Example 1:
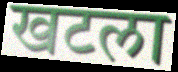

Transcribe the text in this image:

खटला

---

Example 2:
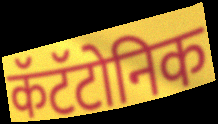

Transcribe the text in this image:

कॅटॅटोनिक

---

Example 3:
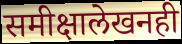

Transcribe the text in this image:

समीक्षालेखनही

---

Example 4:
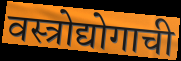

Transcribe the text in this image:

वस्त्रोद्योगाची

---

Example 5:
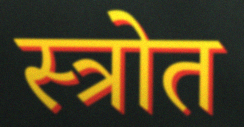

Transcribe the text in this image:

स्त्रोत